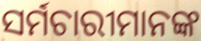
ସର୍ମଚାରୀମାନଙ୍କ